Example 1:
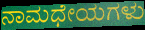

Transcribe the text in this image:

ನಾಮಧೇಯಗಳು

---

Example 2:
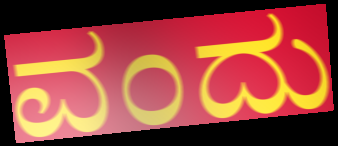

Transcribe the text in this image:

ವಂದು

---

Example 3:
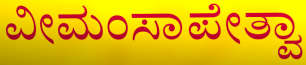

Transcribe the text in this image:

ವೀಮಂಸಾಪೇತ್ವಾ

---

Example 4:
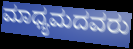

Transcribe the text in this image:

ಮಾಧ್ಯಮದವರು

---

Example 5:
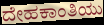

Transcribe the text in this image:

ದೇಹಕಾಂತಿಯು